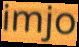
imjo